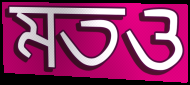
মতও